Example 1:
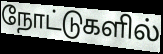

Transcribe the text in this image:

நோட்டுகளில்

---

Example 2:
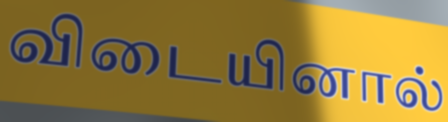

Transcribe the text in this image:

விடையினால்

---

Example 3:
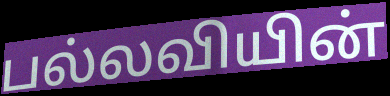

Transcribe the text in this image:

பல்லவியின்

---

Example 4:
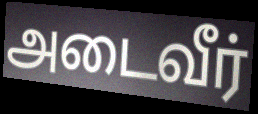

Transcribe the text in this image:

அடைவீர்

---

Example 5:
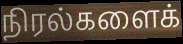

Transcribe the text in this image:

நிரல்களைக்